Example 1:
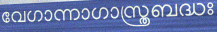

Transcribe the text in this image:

വേഗാന്നാഗാസ്ത്രബദ്ധഃ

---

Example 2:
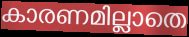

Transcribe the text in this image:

കാരണമില്ലാതെ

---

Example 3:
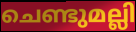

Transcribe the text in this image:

ചെണ്ടുമല്ലി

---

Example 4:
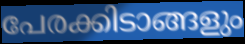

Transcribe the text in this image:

പേരക്കിടാങ്ങളും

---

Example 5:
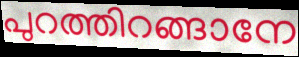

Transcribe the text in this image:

പുറത്തിറങ്ങാനേ